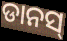
ଡାନସ୍